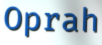
Oprah